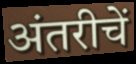
अंतरीचें